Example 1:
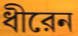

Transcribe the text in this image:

ধীরেন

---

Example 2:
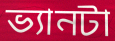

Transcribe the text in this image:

ভ্যানটা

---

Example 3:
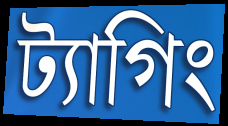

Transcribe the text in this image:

ট্যাগিং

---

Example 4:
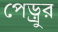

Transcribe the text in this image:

পেড়্রুর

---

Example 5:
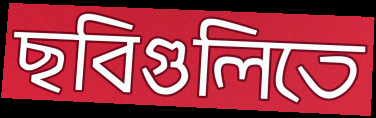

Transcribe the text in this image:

ছবিগুলিতে